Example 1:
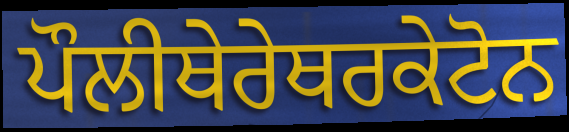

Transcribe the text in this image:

ਪੌਲੀਥੇਰੇਥਰਕੇਟੋਨ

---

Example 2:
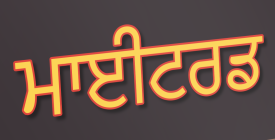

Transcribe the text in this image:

ਮਾਈਟਰਡ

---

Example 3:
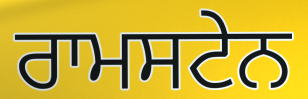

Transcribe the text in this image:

ਰਾਮਸਟੇਨ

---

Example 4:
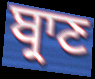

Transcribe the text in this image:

ਬ੍ਰਾਣ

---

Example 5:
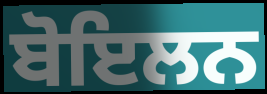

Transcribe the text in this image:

ਬੋਇਲਨ